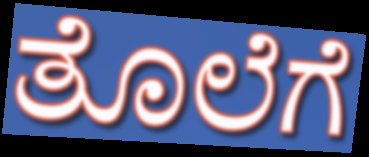
ತೊಲೆಗೆ